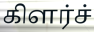
கிளர்ச்